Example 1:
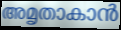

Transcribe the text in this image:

അമൃതാകാൻ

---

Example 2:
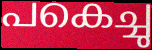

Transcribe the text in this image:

പകെച്ചു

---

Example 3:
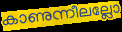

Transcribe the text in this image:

കാണുന്നീലല്ലോ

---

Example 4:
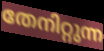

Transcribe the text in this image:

തേനിറ്റുന്ന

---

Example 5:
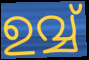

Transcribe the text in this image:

ഉവ്വ്